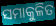
ସମାକୁଳିତ